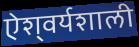
ऐश्वर्यशाली